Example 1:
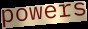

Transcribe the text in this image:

powers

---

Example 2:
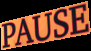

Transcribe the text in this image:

PAUSE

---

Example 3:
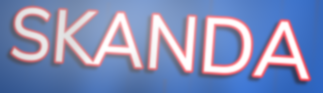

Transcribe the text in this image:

SKANDA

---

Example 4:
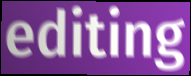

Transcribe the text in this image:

editing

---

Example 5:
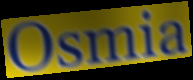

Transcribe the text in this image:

Osmia